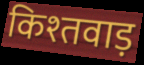
किश्तवाड़